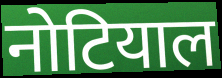
नोटियाल